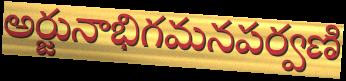
అర్జునాభిగమనపర్వణి